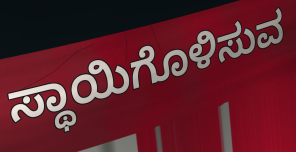
ಸ್ಥಾಯಿಗೊಳಿಸುವ